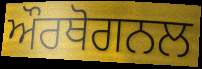
ਔਰਥੋਗਨਲ